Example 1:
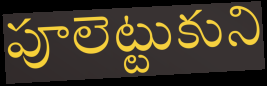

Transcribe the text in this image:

పూలెట్టుకుని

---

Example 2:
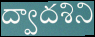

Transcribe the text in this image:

ద్వాదశిని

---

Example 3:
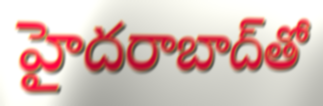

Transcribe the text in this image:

హైదరాబాద్‌తో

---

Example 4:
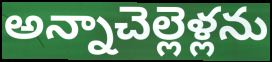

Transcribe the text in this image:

అన్నాచెల్లెళ్లను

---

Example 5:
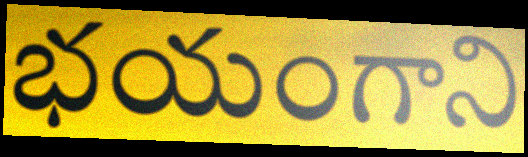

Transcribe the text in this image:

భయంగాని